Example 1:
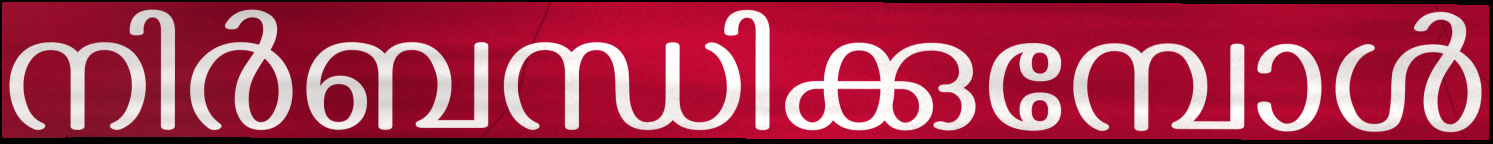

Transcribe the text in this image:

നിർബന്ധിക്കുമ്പോൾ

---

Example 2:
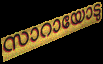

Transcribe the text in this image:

സാറായോടു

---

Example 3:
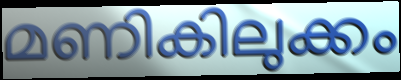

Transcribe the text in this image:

മണികിലുക്കം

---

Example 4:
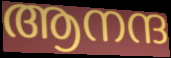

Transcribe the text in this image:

ആനന്ദ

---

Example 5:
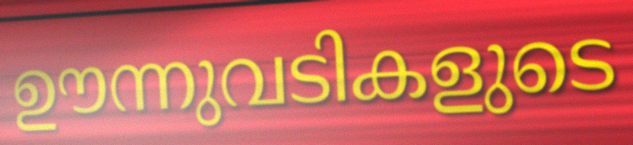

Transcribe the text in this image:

ഊന്നുവടികളുടെ